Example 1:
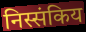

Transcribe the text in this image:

निस्संकिय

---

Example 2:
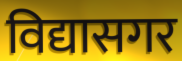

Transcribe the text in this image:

विद्यासगर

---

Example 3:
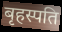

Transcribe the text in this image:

बृहस्पति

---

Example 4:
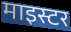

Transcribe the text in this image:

माइस्टर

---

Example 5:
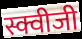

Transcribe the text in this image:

स्क्वीजी